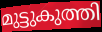
മുട്ടുകുത്തി